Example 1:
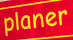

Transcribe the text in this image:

planer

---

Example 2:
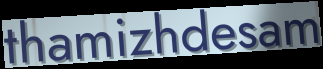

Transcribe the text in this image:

thamizhdesam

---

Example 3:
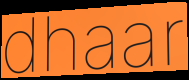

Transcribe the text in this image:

dhaar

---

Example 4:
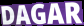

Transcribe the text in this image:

DAGAR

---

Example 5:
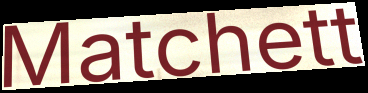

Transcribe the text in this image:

Matchett